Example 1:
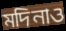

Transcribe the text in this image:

মদিনাও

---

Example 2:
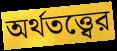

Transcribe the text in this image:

অর্থতত্ত্বের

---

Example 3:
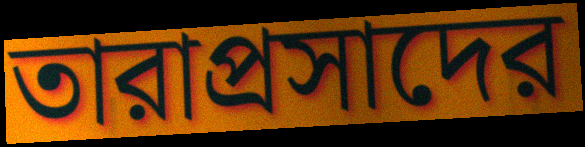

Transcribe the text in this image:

তারাপ্রসাদের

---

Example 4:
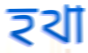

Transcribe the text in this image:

হথা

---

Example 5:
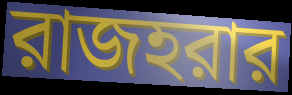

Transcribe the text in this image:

রাজহরার